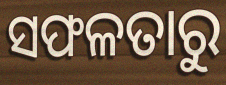
ସଫଳତାରୁ